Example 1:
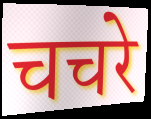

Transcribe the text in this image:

चचरे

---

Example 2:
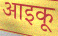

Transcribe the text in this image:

आइकू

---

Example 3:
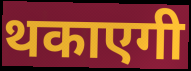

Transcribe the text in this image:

थकाएगी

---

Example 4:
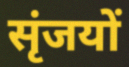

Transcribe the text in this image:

सृंजयों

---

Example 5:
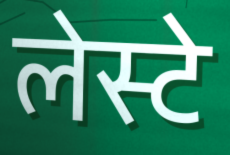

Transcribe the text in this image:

लेस्टे